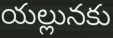
యల్లునకు